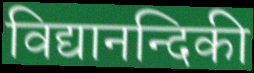
विद्यानन्दिकी